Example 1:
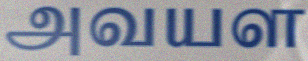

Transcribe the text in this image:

அவயள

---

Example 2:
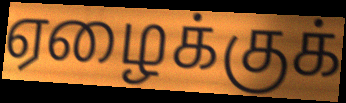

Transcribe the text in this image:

ஏழைக்குக்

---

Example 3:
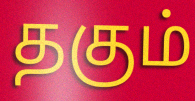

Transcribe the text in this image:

தகும்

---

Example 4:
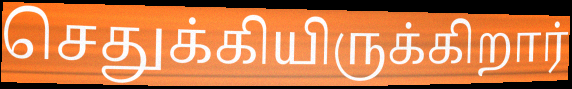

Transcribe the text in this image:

செதுக்கியிருக்கிறார்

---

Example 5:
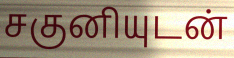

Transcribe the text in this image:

சகுனியுடன்